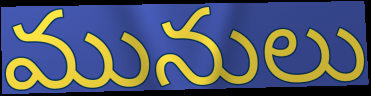
మునులు